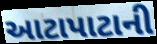
આટાપાટાની